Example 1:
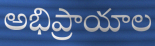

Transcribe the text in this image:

అభిప్రాయాల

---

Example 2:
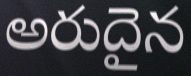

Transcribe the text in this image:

అరుదైన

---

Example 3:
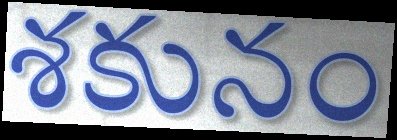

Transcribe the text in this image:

శకునం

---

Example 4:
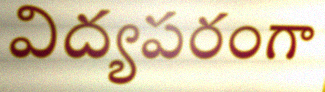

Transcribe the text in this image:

విద్యపరంగా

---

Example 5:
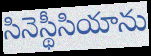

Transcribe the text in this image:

సినెస్థీసియాను